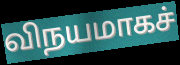
விநயமாகச்